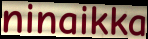
ninaikka